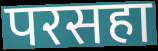
परसहा